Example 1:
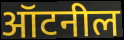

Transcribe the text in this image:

ऑटनील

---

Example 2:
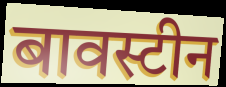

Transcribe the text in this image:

बावस्टीन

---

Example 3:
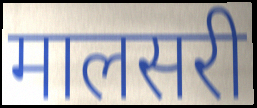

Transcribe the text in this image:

मालसरी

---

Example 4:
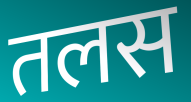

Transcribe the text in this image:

तलस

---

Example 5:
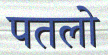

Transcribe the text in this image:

पतलो